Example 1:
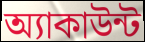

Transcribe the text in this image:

অ্যাকাউন্ট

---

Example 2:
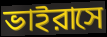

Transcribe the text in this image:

ভাইরাসে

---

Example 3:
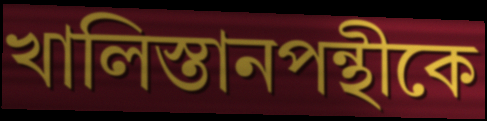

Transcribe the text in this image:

খালিস্তানপন্থীকে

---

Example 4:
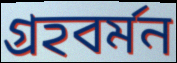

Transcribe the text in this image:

গ্রহবর্মন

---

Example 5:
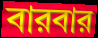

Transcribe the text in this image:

বারবার